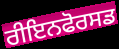
ਰੀਇਨਫੋਰਸਡ